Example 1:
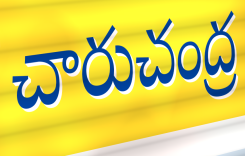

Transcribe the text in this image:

చారుచంద్ర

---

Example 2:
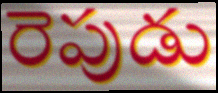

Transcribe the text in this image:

రెపుడు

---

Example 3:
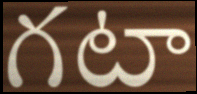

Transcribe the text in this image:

గటా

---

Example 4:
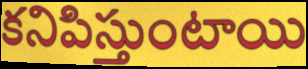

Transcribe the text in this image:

కనిపిస్తుంటాయి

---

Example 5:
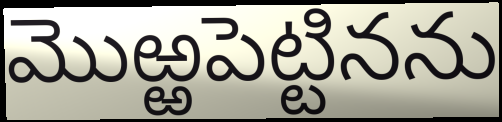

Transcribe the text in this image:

మొఱ్ఱపెట్టినను